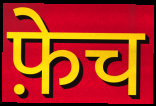
फ़ेच